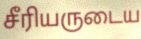
சீரியருடைய